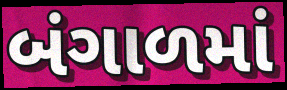
બંગાળમાં